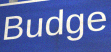
Budge